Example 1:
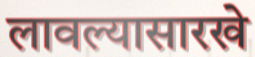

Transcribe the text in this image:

लावल्यासारखे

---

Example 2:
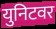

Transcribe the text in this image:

युनिटवर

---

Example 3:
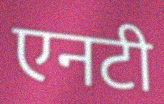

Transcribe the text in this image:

एनटी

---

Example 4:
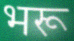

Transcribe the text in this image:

भरू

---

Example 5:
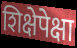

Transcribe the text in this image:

शिक्षेपेक्षा